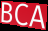
BCA